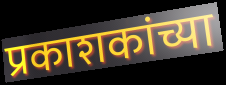
प्रकाशकांच्या